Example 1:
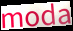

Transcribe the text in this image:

moda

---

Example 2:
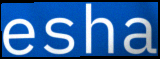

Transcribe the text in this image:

esha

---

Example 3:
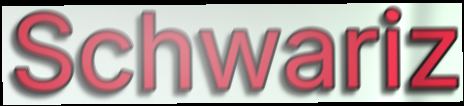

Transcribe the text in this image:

Schwariz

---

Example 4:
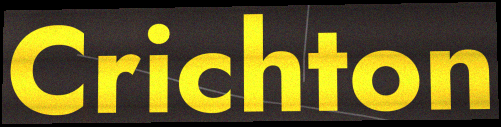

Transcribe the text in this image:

Crichton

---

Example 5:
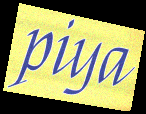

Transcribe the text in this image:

piya